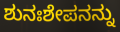
ಶುನಃಶೇಪನನ್ನು